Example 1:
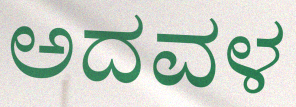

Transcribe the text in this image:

ಅದವಳ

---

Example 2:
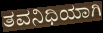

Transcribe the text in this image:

ತವನಿಧಿಯಾಗಿ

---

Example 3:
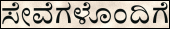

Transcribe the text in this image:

ಸೇವೆಗಳೊಂದಿಗೆ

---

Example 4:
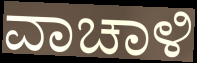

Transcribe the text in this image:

ವಾಚಾಳಿ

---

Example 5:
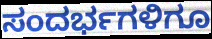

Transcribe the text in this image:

ಸಂದರ್ಭಗಳಿಗೂ